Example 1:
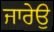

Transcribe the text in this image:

ਜਾਰੇਉ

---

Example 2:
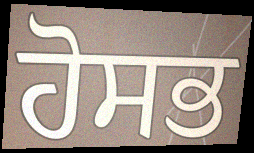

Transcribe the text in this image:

ਹੋਸਭ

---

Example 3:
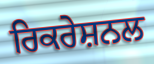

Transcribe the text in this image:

ਰਿਕਰੇਸ਼ਨਲ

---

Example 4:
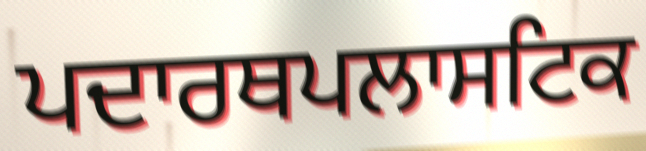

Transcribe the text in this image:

ਪਦਾਰਥਪਲਾਸਟਿਕ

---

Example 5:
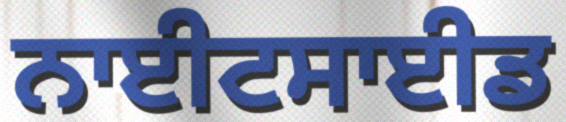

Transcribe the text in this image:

ਨਾਈਟਸਾਈਡ